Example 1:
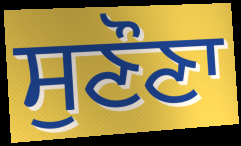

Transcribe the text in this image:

ਸੁਣੌਣਾ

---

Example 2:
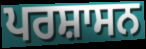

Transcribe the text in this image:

ਪਰਸ਼ਾਸਨ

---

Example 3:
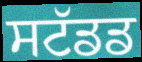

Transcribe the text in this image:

ਸਟੱਡਡ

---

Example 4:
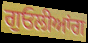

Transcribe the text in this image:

ਗੁਓਲੀਆਂਗ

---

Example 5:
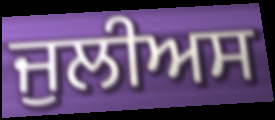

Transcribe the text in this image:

ਜੁਲੀਅਸ